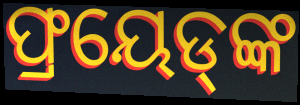
ଫ୍ରୟେଡ୍‍ଙ୍କ